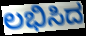
ಲಭಿಸಿದ